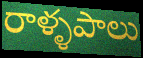
రాళ్ళపాలు